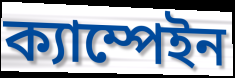
ক্যাম্পেইন